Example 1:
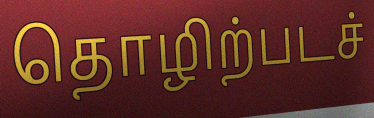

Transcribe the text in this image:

தொழிற்படச்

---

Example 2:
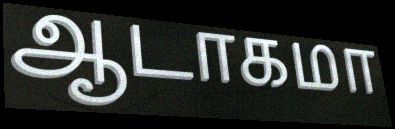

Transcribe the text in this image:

ஆடாகமா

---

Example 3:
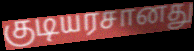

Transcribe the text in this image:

குடியரசானது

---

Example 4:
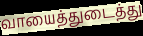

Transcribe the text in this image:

வாயைத்துடைத்து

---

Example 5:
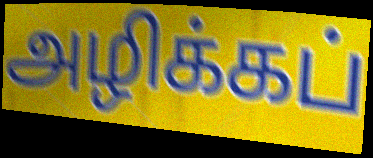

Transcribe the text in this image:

அழிக்கப்